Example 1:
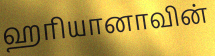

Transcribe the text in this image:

ஹரியானாவின்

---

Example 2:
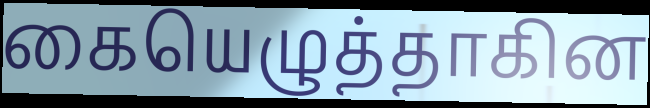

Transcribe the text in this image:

கையெழுத்தாகின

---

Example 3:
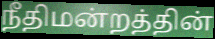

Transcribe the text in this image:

நீதிமன்றத்தின்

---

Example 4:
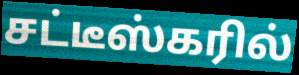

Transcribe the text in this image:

சட்டீஸ்கரில்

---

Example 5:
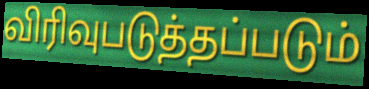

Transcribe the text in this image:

விரிவுபடுத்தப்படும்